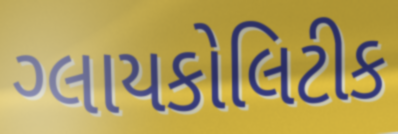
ગ્લાયકોલિટીક